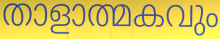
താളാത്മകവും